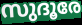
സുദൂരേ